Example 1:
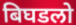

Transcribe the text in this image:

बिघडलो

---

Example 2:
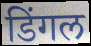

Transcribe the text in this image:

डिंगल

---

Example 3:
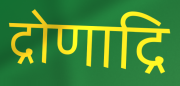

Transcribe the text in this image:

द्रोणाद्रि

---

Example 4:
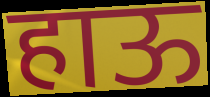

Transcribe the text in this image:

हाऊ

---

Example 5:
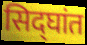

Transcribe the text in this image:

सिद्घांत